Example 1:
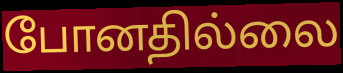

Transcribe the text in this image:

போனதில்லை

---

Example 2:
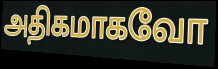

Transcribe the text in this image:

அதிகமாகவோ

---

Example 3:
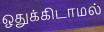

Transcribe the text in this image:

ஒதுக்கிடாமல்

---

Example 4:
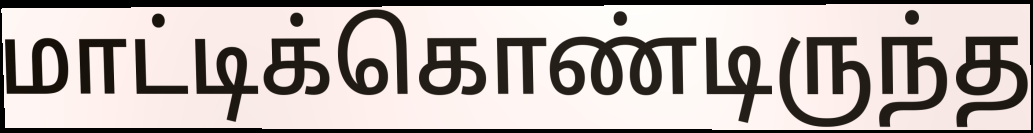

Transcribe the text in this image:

மாட்டிக்கொண்டிருந்த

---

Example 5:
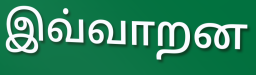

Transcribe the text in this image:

இவ்வாறன